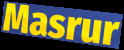
Masrur